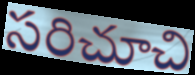
సరిచూచి